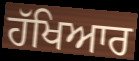
ਹੱਖਿਆਰ